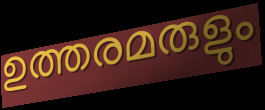
ഉത്തരമരുളും